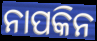
ନାପକିନ